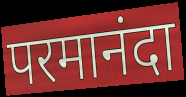
परमानंदा